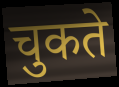
चुकते